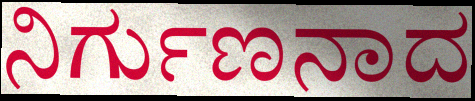
ನಿರ್ಗುಣನಾದ